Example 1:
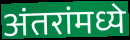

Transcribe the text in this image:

अंतरांमध्ये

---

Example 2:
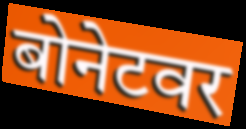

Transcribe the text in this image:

बोनेटवर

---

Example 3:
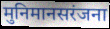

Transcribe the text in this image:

मुनिमानसरंजना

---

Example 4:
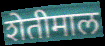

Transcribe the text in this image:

शेतीमाल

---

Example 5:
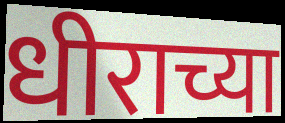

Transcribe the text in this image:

धीराच्या